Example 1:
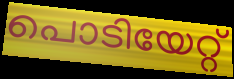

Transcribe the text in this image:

പൊടിയേറ്റ്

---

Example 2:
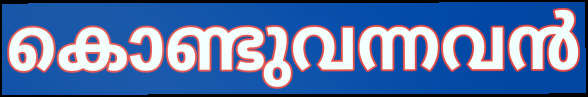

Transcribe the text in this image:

കൊണ്ടുവന്നവൻ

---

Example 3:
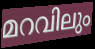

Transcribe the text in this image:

മറവിലും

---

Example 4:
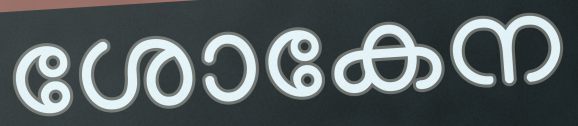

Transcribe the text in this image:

ശോകേന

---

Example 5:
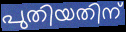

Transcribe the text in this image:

പുതിയതിന്